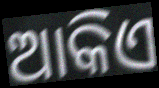
ଆକିଏ